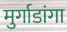
मुर्गाडांगा